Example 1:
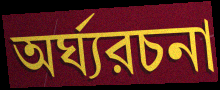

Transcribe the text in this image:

অর্ঘ্যরচনা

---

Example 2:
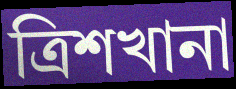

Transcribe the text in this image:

ত্রিশখানা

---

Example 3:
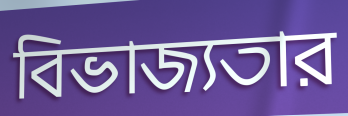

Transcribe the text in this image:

বিভাজ্যতার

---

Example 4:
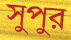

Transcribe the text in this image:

সুপুর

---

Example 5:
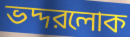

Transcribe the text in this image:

ভদ্দরলোক